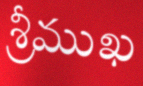
శ్రీముఖ